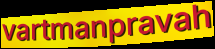
vartmanpravah